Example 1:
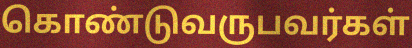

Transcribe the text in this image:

கொண்டுவருபவர்கள்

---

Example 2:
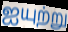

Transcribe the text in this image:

ஐயுற்று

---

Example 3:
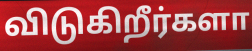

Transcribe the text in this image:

விடுகிறீர்களா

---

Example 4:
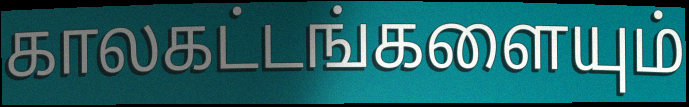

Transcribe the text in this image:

காலகட்டங்களையும்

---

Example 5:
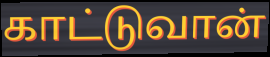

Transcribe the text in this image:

காட்டுவான்